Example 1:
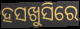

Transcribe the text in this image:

ହସଖୁସିରେ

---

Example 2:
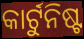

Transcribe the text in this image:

କାର୍ଟୁନିଷ୍ଟ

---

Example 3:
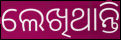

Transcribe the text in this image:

ଲେଖିଥାନ୍ତି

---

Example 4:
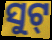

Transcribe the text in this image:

ସୁଟ୍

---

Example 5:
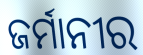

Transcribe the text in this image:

ଜର୍ମାନୀର